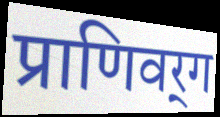
प्राणिवर्ग